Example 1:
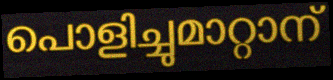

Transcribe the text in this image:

പൊളിച്ചുമാറ്റാന്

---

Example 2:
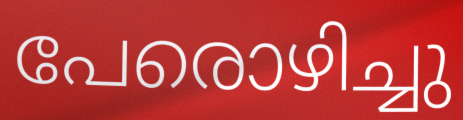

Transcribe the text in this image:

പേരൊഴിച്ചു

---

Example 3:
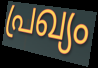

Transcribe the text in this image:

പ്രഖ്യം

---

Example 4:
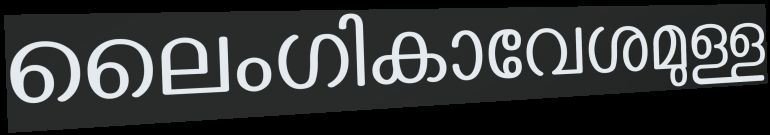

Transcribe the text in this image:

ലൈംഗികാവേശമുള്ള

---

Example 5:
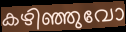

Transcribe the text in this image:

കഴിഞ്ഞുവോ